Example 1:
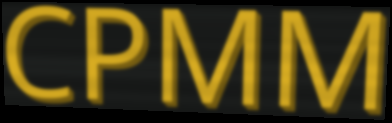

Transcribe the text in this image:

CPMM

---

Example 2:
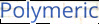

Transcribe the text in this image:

Polymeric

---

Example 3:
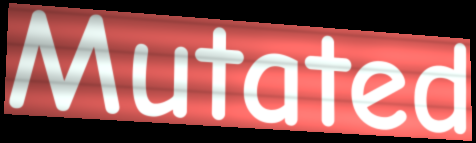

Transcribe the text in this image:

Mutated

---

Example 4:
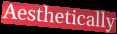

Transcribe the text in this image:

Aesthetically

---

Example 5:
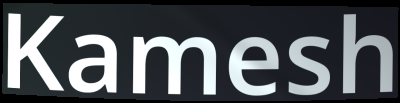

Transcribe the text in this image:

Kamesh